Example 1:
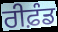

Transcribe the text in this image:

ਰੀਫ਼ੰਡ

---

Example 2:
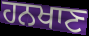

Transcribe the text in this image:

ਹਨਖਾਣ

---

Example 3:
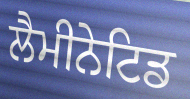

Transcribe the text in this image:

ਲੈਮੀਨੇਟਿਡ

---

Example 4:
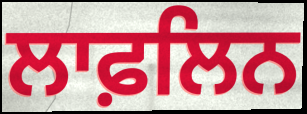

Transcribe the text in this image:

ਲਾਫ਼ਲਿਨ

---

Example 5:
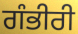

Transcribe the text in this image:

ਗੰਭੀਰੀ